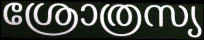
ശ്രോത്രസ്യ